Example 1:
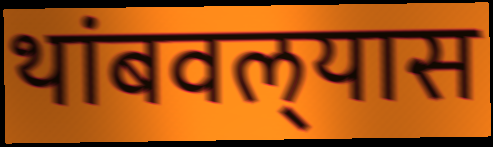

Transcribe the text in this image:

थांबवल्यास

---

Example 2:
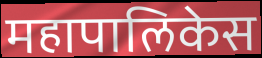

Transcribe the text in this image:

महापालिकेस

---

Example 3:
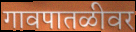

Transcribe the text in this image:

गावपातळीवर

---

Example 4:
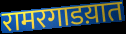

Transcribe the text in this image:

रामरगाडय़ात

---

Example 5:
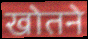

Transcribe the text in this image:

खोतने